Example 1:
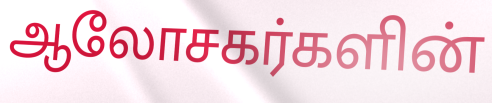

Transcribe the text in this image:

ஆலோசகர்களின்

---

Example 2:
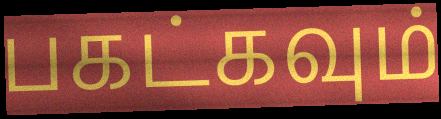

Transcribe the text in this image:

பகட்கவும்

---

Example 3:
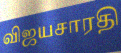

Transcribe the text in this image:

விஜயசாரதி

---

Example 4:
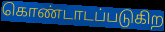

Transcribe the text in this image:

கொண்டாடப்படுகிற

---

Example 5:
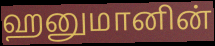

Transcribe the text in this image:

ஹனுமானின்